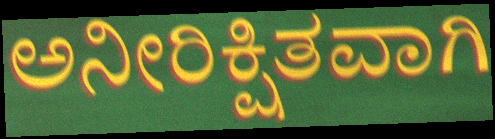
ಅನೀರಿಕ್ಷಿತವಾಗಿ